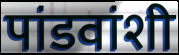
पांडवांशी